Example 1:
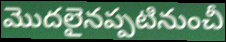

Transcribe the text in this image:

మొదలైనప్పటినుంచీ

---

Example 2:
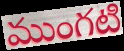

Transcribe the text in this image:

ముంగటి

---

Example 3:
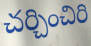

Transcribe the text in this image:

చర్చించిరి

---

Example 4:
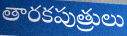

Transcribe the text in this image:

తారకపుత్రులు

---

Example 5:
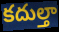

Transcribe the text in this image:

కదుల్తా